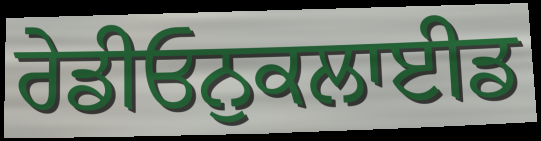
ਰੇਡੀਓਨੁਕਲਾਈਡ